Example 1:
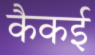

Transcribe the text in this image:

कैकई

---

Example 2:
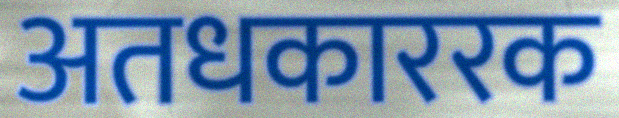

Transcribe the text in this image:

अतधकाररक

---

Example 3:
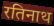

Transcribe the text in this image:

रतिनाथ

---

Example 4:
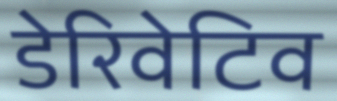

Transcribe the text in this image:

डेरिवेटिव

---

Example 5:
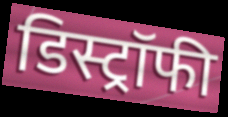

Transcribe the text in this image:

डिस्ट्रॉफी